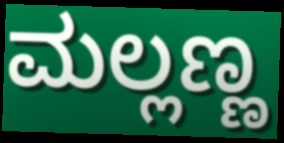
ಮಲ್ಲಣ್ಣ